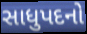
સાધુપદનો